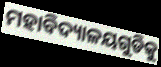
ମହାବିଦ୍ୟାଳୟଗୁଡିକୁ